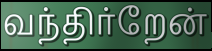
வந்திர்றேன்